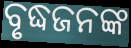
ବୃଦ୍ଧଜନଙ୍କ